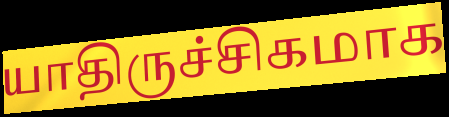
யாதிருச்சிகமாக